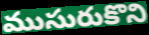
ముసురుకొని